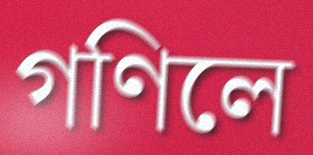
গণিলে